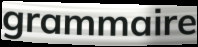
grammaire